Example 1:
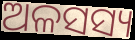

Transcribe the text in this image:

ଅଳସସ୍ୟ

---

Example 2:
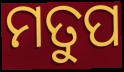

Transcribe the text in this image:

ମତୁପ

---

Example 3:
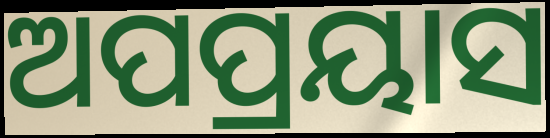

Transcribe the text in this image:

ଅପପ୍ରୟାସ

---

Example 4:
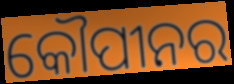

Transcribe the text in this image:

କୌପୀନର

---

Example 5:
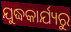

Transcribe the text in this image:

ଯୁଦ୍ଧକାର୍ଯ୍ୟରୁ